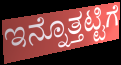
ಇನ್ನೊತ್ತಟ್ಟಿಗೆ